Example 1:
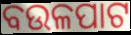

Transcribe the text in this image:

ବଉଳପାଟ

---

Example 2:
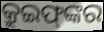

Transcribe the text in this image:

କ୍ରୁଇଫ୍‌ଙ୍କର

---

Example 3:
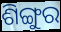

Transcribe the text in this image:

ଶିଙ୍ଗୁର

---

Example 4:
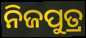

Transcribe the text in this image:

ନିଜପୁତ୍ର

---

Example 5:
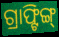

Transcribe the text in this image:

ଗ୍ରାଫ୍ଟିଙ୍ଗ୍